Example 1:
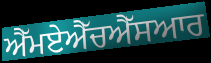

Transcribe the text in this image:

ਐੱਮਏਐੱਚਐੱਸਆਰ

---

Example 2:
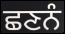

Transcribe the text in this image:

ਛਣਨੰ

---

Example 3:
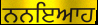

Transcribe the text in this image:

ਨਨਇਆਹ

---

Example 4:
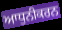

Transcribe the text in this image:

ਆਧੁਨੀਕਰਨ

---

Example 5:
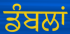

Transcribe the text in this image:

ਡੰਬਲਾਂ